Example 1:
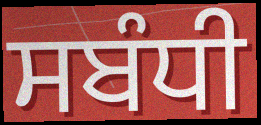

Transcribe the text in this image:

ਸਬੰਧੀ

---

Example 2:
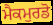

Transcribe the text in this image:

ਮੈਕਮੁਰਡੋ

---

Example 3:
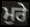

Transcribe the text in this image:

ਮੁਰੇ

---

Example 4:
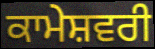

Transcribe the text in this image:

ਕਾਮੇਸ਼ਵਰੀ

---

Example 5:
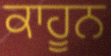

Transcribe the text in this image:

ਕਾਹੂਨ